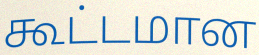
கூட்டமான